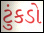
ટુંકડો